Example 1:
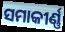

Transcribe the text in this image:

ସମାକୀର୍ଣ୍ଣ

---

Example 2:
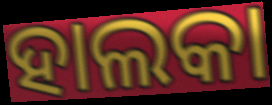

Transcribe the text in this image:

ହାଲକା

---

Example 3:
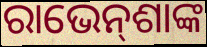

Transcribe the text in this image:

ରାଭେନ୍‌ଶାଙ୍କ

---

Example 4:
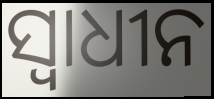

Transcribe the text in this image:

ସ୍ଵାଧୀନ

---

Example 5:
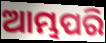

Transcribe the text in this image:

ଆମ୍ଭପରି